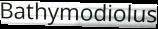
Bathymodiolus